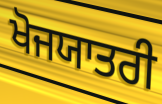
ਖੋਜਯਾਤਰੀ